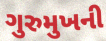
ગુરુમુખની